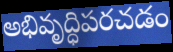
అభివృద్ధిపరచడం